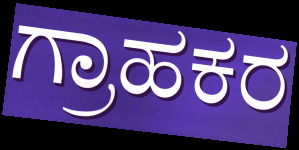
ಗ್ರಾಹಕರ